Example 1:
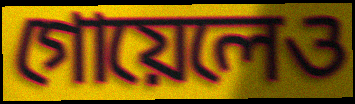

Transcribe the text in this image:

গোয়েলেও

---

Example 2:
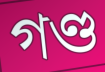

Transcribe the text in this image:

গণ্ড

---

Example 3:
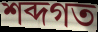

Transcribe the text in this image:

শব্দগত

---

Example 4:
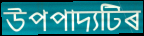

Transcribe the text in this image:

উপপাদ্যটিৰ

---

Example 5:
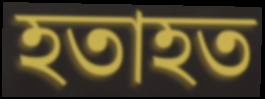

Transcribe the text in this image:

হতাহত